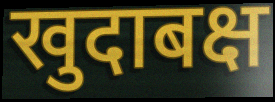
खुदाबक्ष